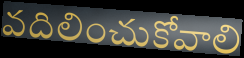
వదిలించుకోవాలి